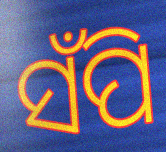
ସଁପି